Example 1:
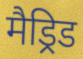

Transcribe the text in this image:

मैड्रिड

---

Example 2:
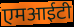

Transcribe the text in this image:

एमआईटी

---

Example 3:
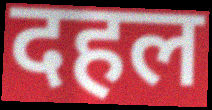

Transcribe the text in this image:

दहल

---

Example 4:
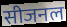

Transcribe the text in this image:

सीजनल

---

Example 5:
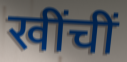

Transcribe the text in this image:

खींचीं